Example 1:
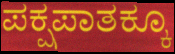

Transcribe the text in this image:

ಪಕ್ಷಪಾತಕ್ಕೂ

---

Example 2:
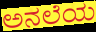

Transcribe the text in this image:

ಅನಲೆಯ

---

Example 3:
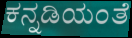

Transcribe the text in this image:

ಕನ್ನಡಿಯಂತೆ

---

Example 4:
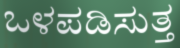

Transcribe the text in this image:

ಒಳಪಡಿಸುತ್ತ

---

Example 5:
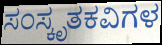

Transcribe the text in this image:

ಸಂಸ್ಕೃತಕವಿಗಳ